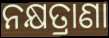
ନକ୍ଷତ୍ରାଣା